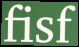
fisf